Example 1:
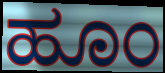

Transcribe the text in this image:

ಹೂಂ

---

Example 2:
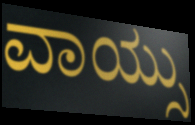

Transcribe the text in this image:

ವಾಯ್ಸು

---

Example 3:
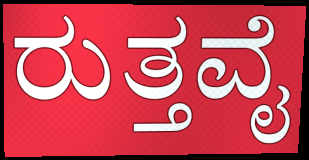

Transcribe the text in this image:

ರುತ್ತವೈ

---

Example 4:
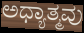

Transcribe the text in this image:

ಅಧ್ಯಾತ್ಮವು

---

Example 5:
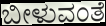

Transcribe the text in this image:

ಬೀಳುವಂತೆ